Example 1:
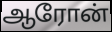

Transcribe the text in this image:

ஆரோன்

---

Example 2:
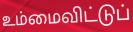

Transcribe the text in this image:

உம்மைவிட்டுப்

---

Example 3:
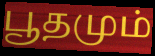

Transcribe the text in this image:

பூதமும்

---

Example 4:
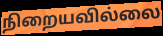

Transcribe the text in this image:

நிறையவில்லை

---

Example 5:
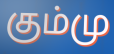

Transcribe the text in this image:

கும்மு